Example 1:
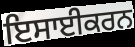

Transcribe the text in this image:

ਇਸਾਈਕਰਨ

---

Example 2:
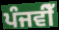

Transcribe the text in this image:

ਪੰਜਵੀਁ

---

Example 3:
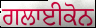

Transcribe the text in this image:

ਗਲਾਈਕੋਨ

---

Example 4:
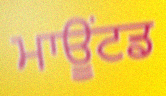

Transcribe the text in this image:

ਮਾਊਂਟਡ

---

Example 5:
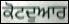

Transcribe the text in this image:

ਕੋਟਦੁਆਰ